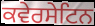
ਕਵੇਰਸੇਟਿਨ